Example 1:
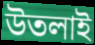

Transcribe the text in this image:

উতলাই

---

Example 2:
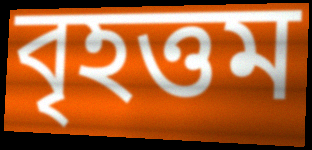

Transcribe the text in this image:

বৃহত্তম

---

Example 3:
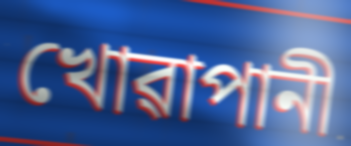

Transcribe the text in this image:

খোৱাপানী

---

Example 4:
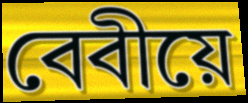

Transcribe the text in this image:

বেবীয়ে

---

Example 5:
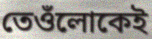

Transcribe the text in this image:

তেওঁলোকেই